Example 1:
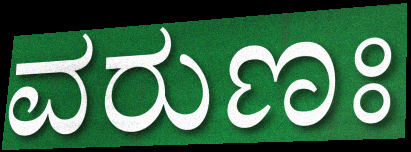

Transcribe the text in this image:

ವರುಣಃ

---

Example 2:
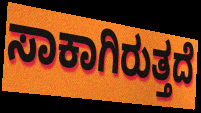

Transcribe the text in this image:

ಸಾಕಾಗಿರುತ್ತದೆ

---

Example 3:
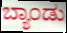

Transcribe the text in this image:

ಬ್ಯಾಂಡು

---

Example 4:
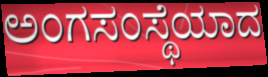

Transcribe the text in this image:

ಅಂಗಸಂಸ್ಥೆಯಾದ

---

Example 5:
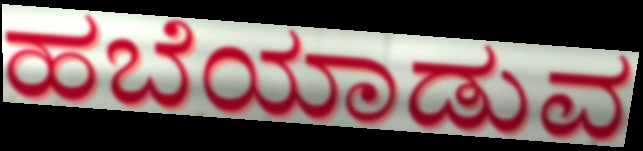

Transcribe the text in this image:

ಹಬೆಯಾಡುವ